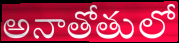
అనాతోతులో